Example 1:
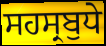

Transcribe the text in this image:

ਸਹਸ੍ਰਬੁਧੇ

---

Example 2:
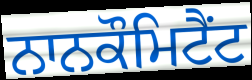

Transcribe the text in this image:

ਨਾਨਕੌਮਿਟੈਂਟ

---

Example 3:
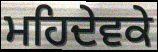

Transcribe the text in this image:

ਮਹਿਦੇਵਕੇ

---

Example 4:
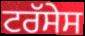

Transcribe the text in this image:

ਟਰੱਸੇਸ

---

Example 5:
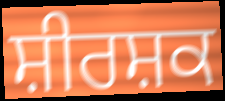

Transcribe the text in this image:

ਸ਼ੀਰਸ਼ਕ